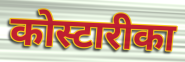
कोस्टारीका